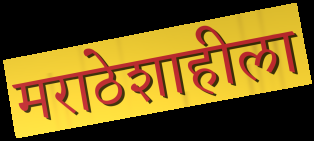
मराठेशाहीला